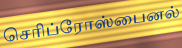
செரிப்ரோஸ்பைனல்